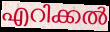
എറിക്കൽ